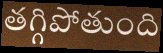
తగ్గిపోతుంది